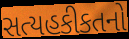
સત્યહકીકતનો